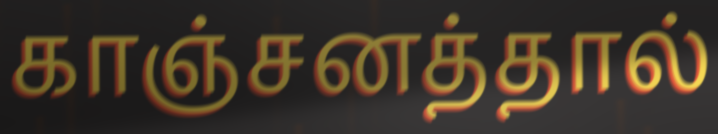
காஞ்சனத்தால்